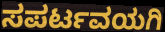
ಸಪರ್ಟವಯಗಿ